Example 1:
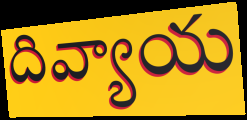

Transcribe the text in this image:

దివ్యాయ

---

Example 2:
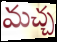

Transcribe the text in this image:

మచ్చ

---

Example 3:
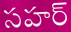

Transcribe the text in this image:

సహర్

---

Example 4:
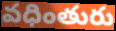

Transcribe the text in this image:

వధింతురు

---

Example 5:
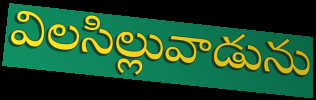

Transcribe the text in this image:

విలసిల్లువాడును